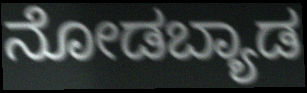
ನೋಡಬ್ಯಾಡ